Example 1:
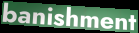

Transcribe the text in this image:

banishment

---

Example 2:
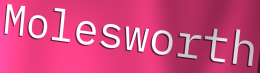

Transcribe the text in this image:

Molesworth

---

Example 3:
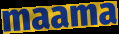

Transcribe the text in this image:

maama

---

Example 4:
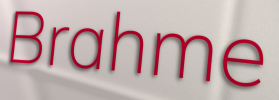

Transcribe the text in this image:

Brahme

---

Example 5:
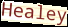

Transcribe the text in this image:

Healey